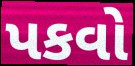
પકવો